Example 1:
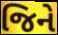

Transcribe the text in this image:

જિને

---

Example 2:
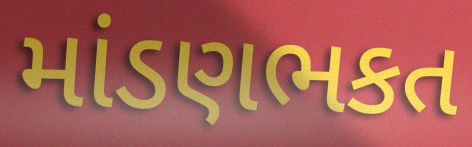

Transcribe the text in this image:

માંડણભકત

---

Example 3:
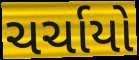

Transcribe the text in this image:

ચર્ચાયો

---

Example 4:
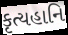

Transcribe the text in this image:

કૃત્યહાનિ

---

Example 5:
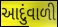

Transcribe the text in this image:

આદુંવાળી